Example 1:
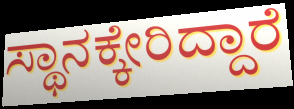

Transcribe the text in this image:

ಸ್ಥಾನಕ್ಕೇರಿದ್ದಾರೆ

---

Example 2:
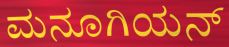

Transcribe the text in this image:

ಮನೂಗಿಯನ್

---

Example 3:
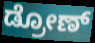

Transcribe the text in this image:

ಡ್ರೋಣ್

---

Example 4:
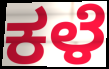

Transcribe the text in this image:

ಕಳೆ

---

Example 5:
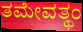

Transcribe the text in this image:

ತಮೇವತ್ಥಂ